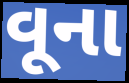
વૂના